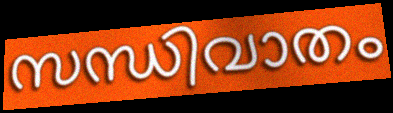
സന്ധിവാതം